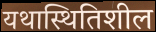
यथास्थितिशील